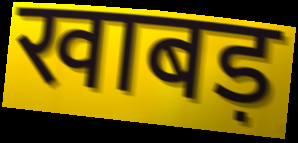
खाबड़